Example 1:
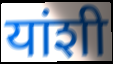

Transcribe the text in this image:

यांशी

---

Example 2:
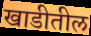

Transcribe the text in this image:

खाडीतील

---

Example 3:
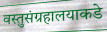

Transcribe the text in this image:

वस्तुसंग्रहालयाकडे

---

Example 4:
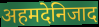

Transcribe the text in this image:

अहमदेनिजाद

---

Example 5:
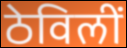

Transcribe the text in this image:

ठेविलीं